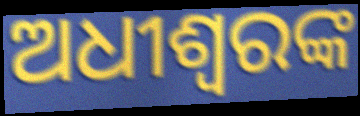
ଅଧୀଶ୍ୱରଙ୍କ